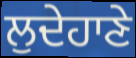
ਲੁਦੇਹਾਣੇ